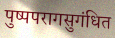
पुष्पपरागसुगंधित